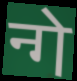
न्गे